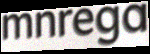
mnrega